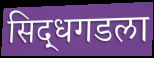
सिद्धगडला